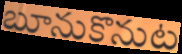
బూనుకొనుట